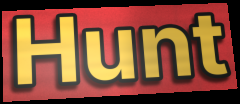
Hunt